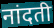
नांदती